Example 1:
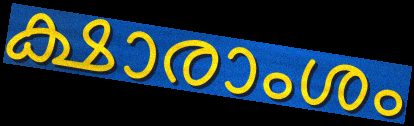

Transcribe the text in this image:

ക്ഷാരാംശം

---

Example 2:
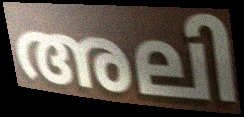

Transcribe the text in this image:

അലി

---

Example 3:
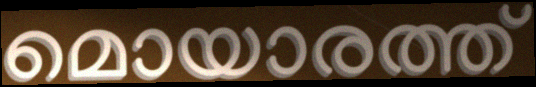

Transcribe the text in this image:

മൊയാരത്ത്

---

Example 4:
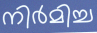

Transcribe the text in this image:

നിർമിച്ച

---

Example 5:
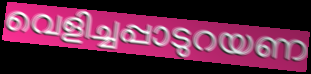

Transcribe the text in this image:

വെളിച്ചപ്പാടുറയണ